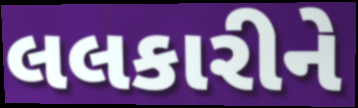
લલકારીને